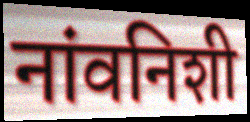
नांवनिशी